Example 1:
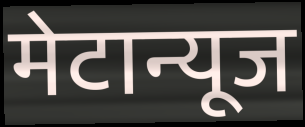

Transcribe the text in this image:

मेटान्यूज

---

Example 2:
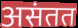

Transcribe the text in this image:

असंतत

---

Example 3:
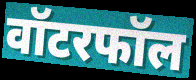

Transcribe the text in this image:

वॉटरफॉल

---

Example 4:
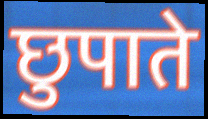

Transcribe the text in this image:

छुपाते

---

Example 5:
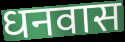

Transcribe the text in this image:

धनवास